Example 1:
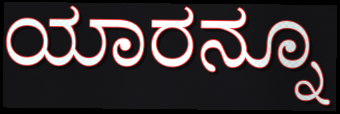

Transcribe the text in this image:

ಯಾರನ್ನೂ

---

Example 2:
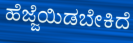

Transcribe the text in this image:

ಹೆಜ್ಜೆಯಿಡಬೇಕಿದೆ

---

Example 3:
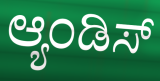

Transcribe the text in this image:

ಆ್ಯಂಡಿಸ್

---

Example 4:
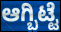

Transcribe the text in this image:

ಆಗ್ಬಿಟ್ಟೆ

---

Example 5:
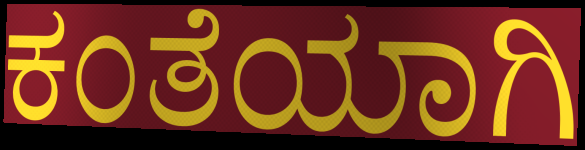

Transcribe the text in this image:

ಕಂತೆಯಾಗಿ